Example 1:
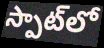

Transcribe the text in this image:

స్పాట్‌లో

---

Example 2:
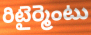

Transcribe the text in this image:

రిటైర్మెంటు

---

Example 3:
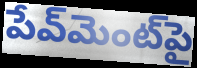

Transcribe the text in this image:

పేవ్‌మెంట్‌పై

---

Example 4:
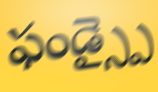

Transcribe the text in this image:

ఫండ్స్పై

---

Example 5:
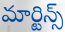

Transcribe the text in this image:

మార్టిన్స్